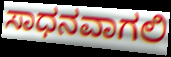
ಸಾಧನವಾಗಲಿ